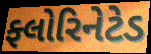
ફ્લોરિનેટેડ